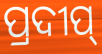
ପ୍ରଦୀପ୍